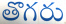
తొగరు